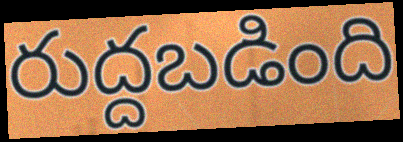
రుద్దబడింది